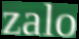
zalo